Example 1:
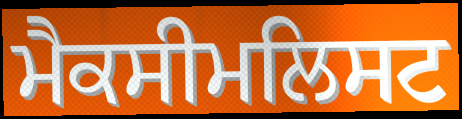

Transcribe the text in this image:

ਮੈਕਸੀਮਲਿਸਟ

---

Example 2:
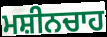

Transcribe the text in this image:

ਮਸ਼ੀਨਚਾਹ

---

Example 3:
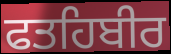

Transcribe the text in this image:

ਫਤਹਿਬੀਰ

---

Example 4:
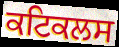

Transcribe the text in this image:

ਕਟਿਕਲਸ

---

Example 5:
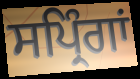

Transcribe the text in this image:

ਸਪ੍ਰਿੰਗਾਂ